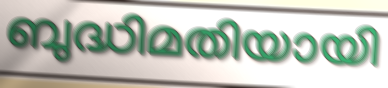
ബുദ്ധിമതിയായി